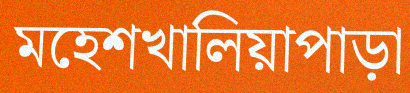
মহেশখালিয়াপাড়া